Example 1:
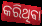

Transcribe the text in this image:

କରିଥିଵା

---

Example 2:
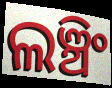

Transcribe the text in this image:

ଲଞ୍ଚିଂ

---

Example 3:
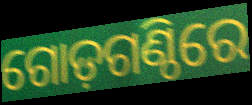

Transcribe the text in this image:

ଗୋଡ଼ଗଣ୍ଠିରେ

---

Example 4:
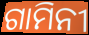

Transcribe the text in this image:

ଗାମିନୀ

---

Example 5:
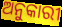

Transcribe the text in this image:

ଅନୁକାରୀ